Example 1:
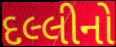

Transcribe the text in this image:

દલ્લીનો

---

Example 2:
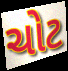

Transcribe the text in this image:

ચોટ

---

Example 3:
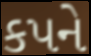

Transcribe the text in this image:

કપને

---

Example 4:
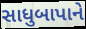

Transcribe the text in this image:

સાધુબાપાને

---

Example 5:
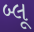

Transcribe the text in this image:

બ્લૂ